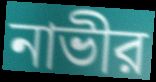
নাভীর